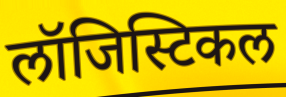
लॉजिस्टिकल